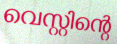
വെസ്റ്റിന്റെ